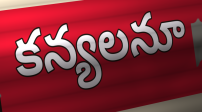
కన్యలనూ